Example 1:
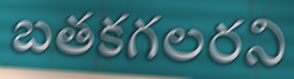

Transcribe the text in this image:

బతకగలరని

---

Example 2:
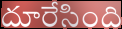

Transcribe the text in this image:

దూరేసింది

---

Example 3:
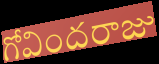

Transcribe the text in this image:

గోవిందరాజు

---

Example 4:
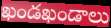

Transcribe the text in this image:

ఖండఖండాలు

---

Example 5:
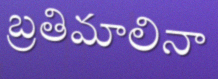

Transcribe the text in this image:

బ్రతిమాలినా